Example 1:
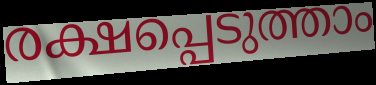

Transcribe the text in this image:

രക്ഷപ്പെടുത്താം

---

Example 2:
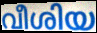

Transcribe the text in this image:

വീശിയ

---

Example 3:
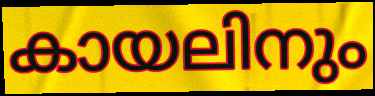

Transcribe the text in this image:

കായലിനും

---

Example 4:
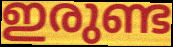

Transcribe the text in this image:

ഇരുണ്ട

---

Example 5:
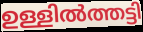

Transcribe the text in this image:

ഉള്ളിൽത്തട്ടി